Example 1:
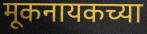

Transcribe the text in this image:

मूकनायकच्या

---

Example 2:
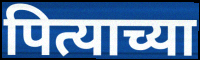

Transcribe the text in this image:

पित्याच्या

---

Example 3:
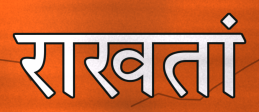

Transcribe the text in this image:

राखतां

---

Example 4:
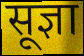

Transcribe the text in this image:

सूज्ञा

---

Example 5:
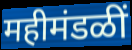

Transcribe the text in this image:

महीमंडळीं